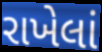
રાખેલાં